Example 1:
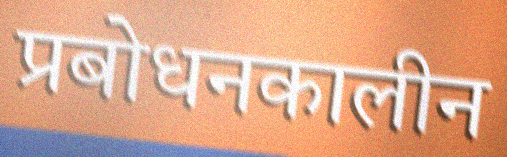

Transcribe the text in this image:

प्रबोधनकालीन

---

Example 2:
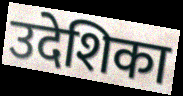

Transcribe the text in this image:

उदेशिका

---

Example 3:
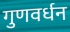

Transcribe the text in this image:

गुणवर्धन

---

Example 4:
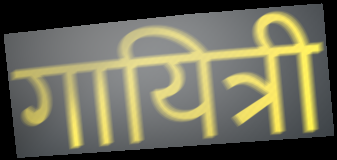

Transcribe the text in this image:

गायित्री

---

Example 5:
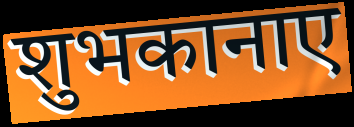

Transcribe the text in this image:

शुभकानाए